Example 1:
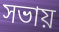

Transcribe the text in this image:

সভায়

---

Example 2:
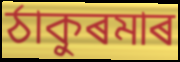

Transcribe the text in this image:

ঠাকুৰমাৰ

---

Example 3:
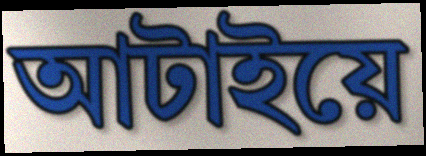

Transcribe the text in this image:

আটাইয়ে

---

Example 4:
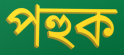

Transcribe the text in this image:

পহুক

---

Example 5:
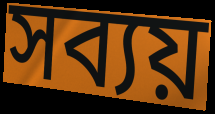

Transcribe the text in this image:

সব্যয়